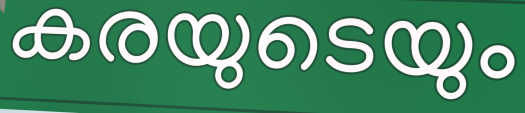
കരയുടെയും